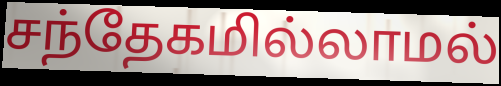
சந்தேகமில்லாமல்